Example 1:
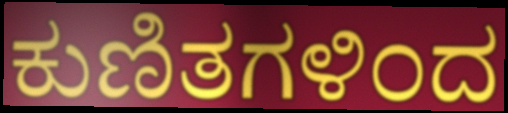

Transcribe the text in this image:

ಕುಣಿತಗಳಿಂದ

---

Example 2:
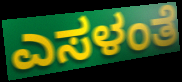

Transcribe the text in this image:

ಎಸಳಂತೆ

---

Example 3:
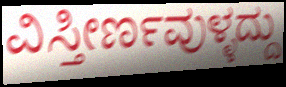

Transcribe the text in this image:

ವಿಸ್ತೀರ್ಣವುಳ್ಳದ್ದು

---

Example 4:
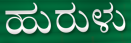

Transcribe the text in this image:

ಹುರುಳು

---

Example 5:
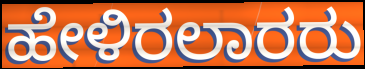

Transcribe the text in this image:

ಹೇಳಿರಲಾರರು